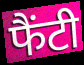
फैंटी